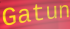
Gatun